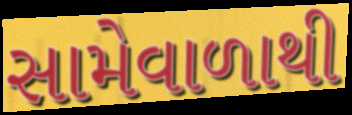
સામેવાળાથી